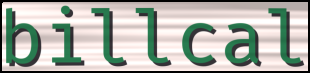
billcal